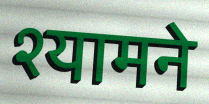
श्यामने